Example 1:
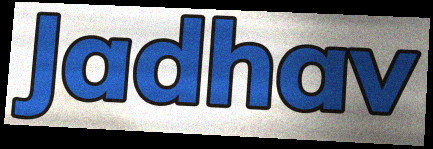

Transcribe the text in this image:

Jadhav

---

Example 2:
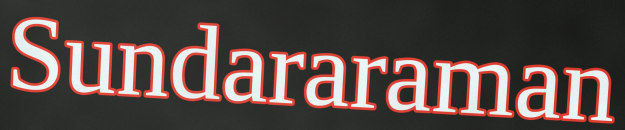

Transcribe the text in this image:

Sundararaman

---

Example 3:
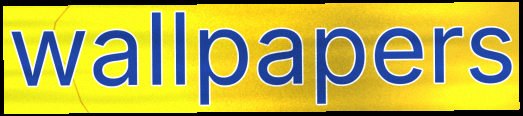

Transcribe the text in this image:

wallpapers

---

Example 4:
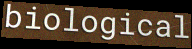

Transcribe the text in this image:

biological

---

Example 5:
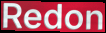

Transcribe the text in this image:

Redon